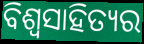
ବିଶ୍ୱସାହିତ୍ୟର